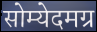
सोम्येदमग्र